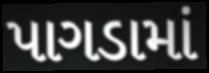
પાગડામાં